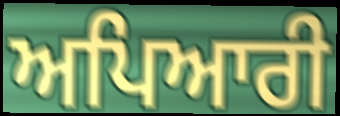
ਅਪਿਆਰੀ